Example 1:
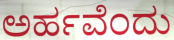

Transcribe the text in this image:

ಅರ್ಹವೆಂದು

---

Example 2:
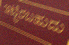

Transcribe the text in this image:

ಇಟ್ಟಿರಬಹುದು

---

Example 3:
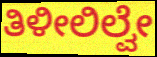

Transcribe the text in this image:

ತಿಳೀಲಿಲ್ವೇ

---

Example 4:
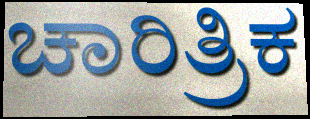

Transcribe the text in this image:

ಚಾರಿತ್ರಿಕ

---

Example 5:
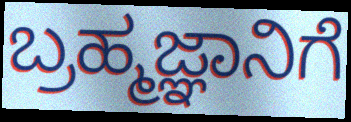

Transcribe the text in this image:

ಬ್ರಹ್ಮಜ್ಞಾನಿಗೆ